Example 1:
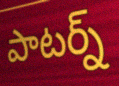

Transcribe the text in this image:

పాటర్న్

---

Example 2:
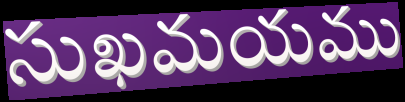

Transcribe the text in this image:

సుఖమయము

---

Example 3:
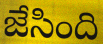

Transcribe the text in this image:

జేసింది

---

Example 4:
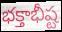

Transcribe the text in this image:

భక్తాభీష్ట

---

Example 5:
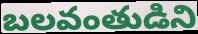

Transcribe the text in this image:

బలవంతుడిని